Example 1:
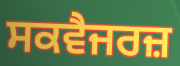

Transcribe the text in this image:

ਸਕਵੈਜਰਜ਼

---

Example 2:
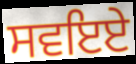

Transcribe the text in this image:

ਸਵਇਏ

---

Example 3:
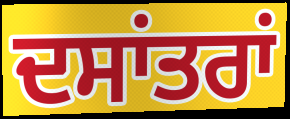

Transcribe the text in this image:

ਦਸਾਂਤਰਾਂ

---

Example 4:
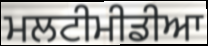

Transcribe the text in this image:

ਮਲਟੀਮੀਡੀਆ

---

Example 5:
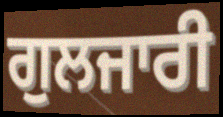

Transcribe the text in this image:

ਗੁਲਜਾਰੀ